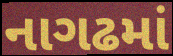
નાગઢમાં